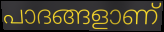
പാദങ്ങളാണ്